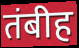
तंबीह